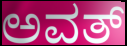
ಅವತ್